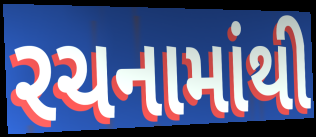
રચનામાંથી